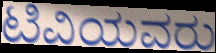
ಟಿವಿಯವರು